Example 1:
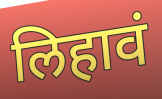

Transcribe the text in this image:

लिहावं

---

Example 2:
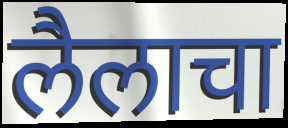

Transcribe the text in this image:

लैलाचा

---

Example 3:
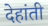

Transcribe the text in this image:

देहांती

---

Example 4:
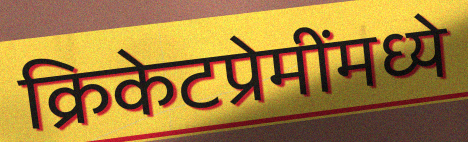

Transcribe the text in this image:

क्रिकेटप्रेमींमध्ये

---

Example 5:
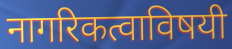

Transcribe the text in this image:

नागरिकत्वाविषयी